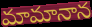
మామానాన